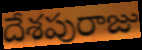
దేశపురాజు